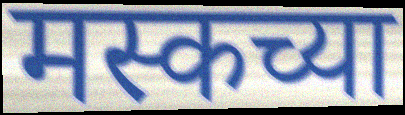
मस्कच्या